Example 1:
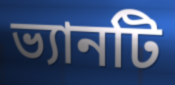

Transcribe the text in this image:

ভ্যানটি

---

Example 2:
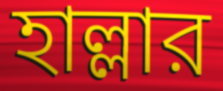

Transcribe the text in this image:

হাল্লার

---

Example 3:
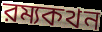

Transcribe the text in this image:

রম্যকথন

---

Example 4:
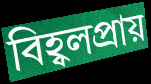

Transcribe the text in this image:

বিহ্বলপ্রায়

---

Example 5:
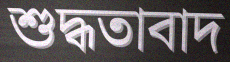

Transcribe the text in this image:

শুদ্ধতাবাদ